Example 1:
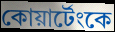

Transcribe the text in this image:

কোয়ার্টেংকে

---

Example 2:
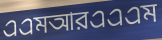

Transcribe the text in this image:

এএমআরএএএম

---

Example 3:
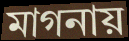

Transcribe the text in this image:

মাগনায়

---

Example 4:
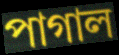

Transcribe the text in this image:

পাগাল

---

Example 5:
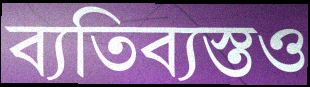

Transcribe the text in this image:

ব্যতিব্যস্তও